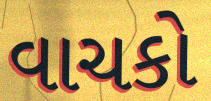
વાચકો